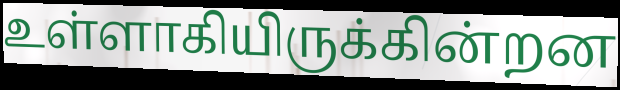
உள்ளாகியிருக்கின்றன